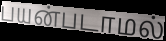
பயன்படாமல்